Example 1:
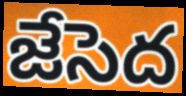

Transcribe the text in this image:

జేసెద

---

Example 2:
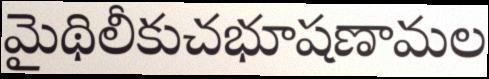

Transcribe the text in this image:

మైథిలీకుచభూషణామల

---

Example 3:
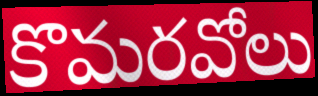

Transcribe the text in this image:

కొమరవోలు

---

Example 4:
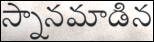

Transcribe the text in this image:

స్నానమాడిన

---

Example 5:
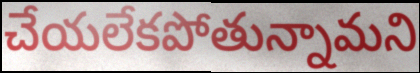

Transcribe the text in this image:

చేయలేకపోతున్నామని